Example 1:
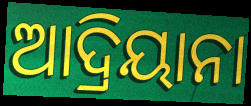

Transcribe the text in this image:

ଆଦ୍ରିୟାନା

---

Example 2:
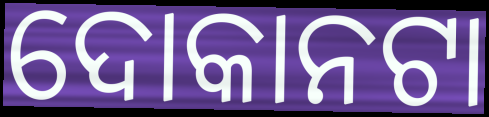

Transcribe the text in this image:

ଦୋକାନଟା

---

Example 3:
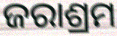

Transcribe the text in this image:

ଜରାଶ୍ରମ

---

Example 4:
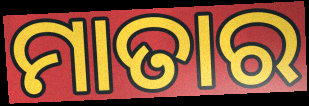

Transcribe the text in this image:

ମାତାର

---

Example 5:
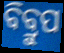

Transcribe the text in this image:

ବିବ୍ରୁପ